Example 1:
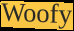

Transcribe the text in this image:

Woofy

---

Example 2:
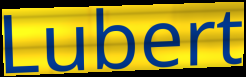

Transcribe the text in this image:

Lubert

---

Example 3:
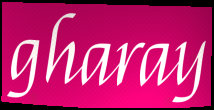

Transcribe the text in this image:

gharay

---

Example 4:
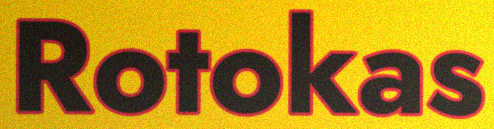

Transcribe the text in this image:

Rotokas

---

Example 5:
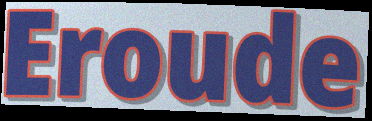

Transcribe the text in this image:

Eroude